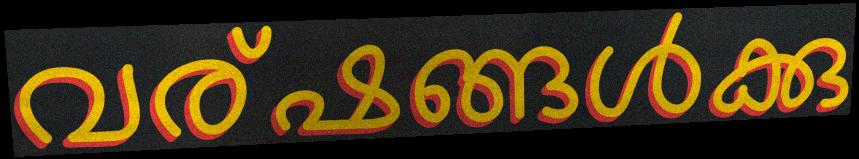
വര്ഷങ്ങൾക്കു